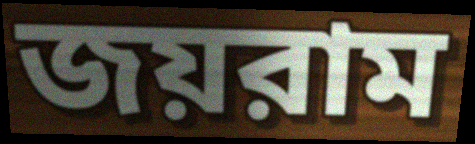
জয়রাম